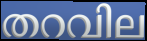
തറവില